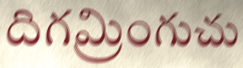
దిగమ్రింగుచు